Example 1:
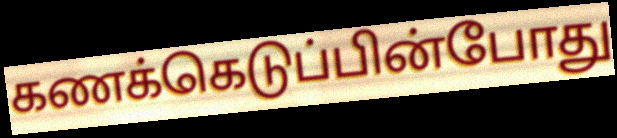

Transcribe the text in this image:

கணக்கெடுப்பின்போது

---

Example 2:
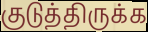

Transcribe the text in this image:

குடுத்திருக்க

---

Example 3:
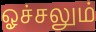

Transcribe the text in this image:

ஓச்சலும்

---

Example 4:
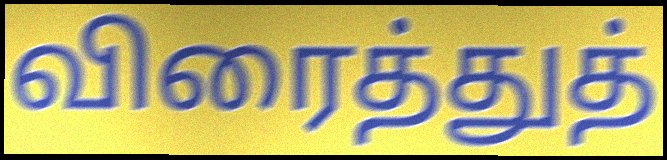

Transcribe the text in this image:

விரைத்துத்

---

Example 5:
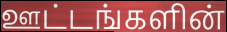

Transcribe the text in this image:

ஊட்டங்களின்